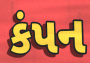
કંપન